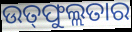
ଉତ୍‌ଫୁଲ୍ଲତାର